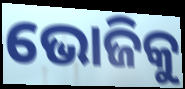
ଭୋଜିକୁ